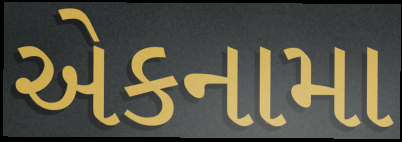
એકનામા